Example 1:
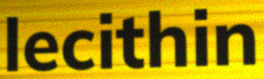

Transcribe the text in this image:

lecithin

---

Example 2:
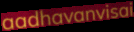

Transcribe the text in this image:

aadhavanvisai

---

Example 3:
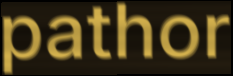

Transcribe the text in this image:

pathor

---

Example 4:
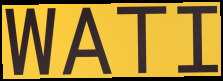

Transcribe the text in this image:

WATI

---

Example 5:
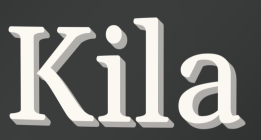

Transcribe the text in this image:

Kila